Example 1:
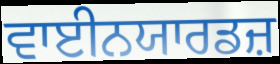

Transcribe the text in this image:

ਵਾਈਨਯਾਰਡਜ਼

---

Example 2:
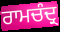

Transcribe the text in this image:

ਰਾਮਚੰਦ੍ਰ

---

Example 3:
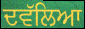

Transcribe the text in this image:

ਦਵੱਲਿਆ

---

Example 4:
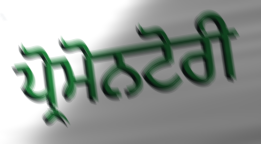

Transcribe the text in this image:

ਪ੍ਰੋਮੋਨਟੋਰੀ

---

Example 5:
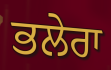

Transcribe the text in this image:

ਭਲੇਰਾ